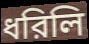
ধরিলি